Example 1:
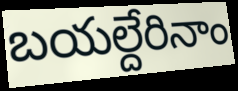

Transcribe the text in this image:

బయల్దేరినాం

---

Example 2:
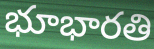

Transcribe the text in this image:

భూభారతి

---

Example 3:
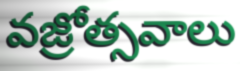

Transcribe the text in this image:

వజ్రోత్సవాలు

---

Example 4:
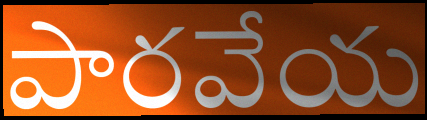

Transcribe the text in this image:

పారవేయ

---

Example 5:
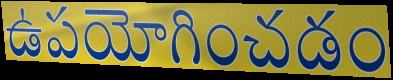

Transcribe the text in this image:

ఉపయోగించడం